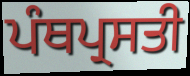
ਪੰਥਪ੍ਰਸਤੀ